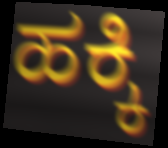
ಹಕ್ಕಿ